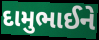
દામુભાઈને